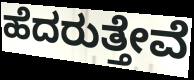
ಹೆದರುತ್ತೇವೆ